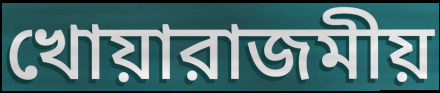
খোয়ারাজমীয়